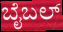
ಬೈಬಲ್